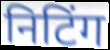
निटिंग